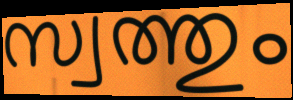
സ്വത്തും